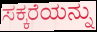
ಸಕ್ಕರೆಯನ್ನು